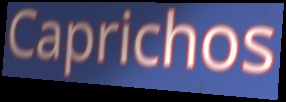
Caprichos